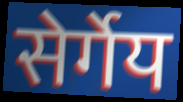
सेर्गेय